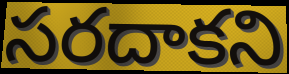
సరదాకని